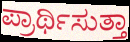
ಪ್ರಾರ್ಥಿಸುತ್ತಾ